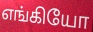
எங்கியோ